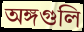
অঙ্গগুলি